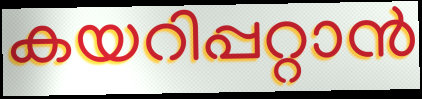
കയറിപ്പറ്റാൻ